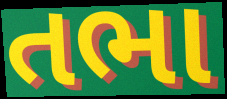
તભા